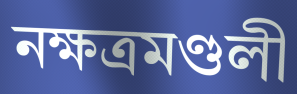
নক্ষত্রমণ্ডলী